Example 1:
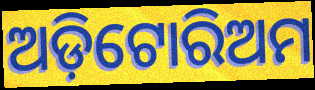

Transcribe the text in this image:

ଅଡ଼ିଟୋରିଅମ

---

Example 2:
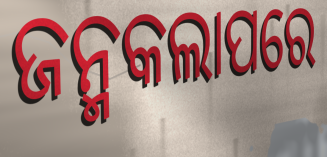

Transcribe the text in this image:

ଜନ୍ମକଲାପରେ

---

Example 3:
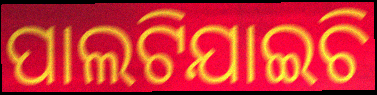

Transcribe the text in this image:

ପାଲଟିଯାଇଚି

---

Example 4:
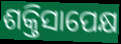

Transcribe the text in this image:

ଶକ୍ତିସାପେକ୍ଷ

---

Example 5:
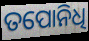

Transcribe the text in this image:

ତପୋନିଧି